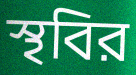
স্থবির